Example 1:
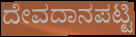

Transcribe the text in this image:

ದೇವದಾನಪಟ್ಟಿ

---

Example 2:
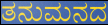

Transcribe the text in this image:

ತನುಮನದ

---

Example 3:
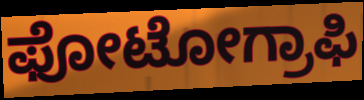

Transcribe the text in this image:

ಫೋಟೋಗ್ರಾಫಿ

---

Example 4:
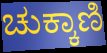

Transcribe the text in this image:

ಚುಕ್ಕಾಣಿ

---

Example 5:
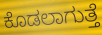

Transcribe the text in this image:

ಕೊಡಲಾಗುತ್ತೆ